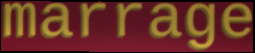
marrage